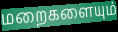
மறைகளையும்